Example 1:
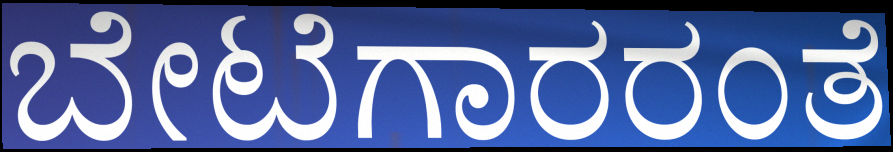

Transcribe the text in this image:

ಬೇಟೆಗಾರರಂತೆ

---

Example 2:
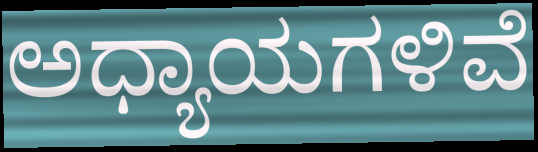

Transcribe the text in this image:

ಅಧ್ಯಾಯಗಳಿವೆ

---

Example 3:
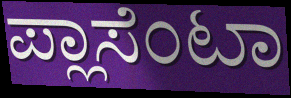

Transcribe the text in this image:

ಪ್ಲಾಸೆಂಟಾ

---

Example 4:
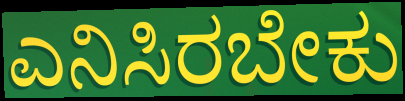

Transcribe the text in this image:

ಎನಿಸಿರಬೇಕು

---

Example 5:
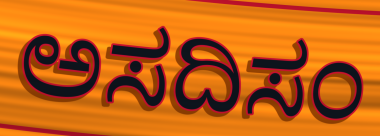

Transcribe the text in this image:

ಅಸದಿಸಂ